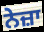
ਨੇਜ਼ਾ